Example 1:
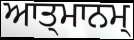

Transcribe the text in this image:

ਆਤ੍ਮਾਨਮ੍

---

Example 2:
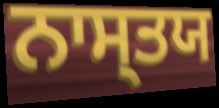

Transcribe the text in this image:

ਨਾਸ੍ਤਯ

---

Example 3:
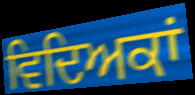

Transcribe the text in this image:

ਵਿਦਿਅਕਾਂ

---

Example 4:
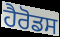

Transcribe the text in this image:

ਹੈਰੋਡਸ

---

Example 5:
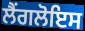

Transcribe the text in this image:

ਲੈਂਗਲੋਇਸ